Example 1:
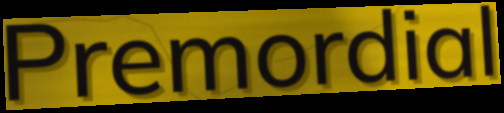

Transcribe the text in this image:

Premordial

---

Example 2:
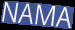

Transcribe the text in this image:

NAMA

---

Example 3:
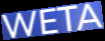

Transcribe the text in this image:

WETA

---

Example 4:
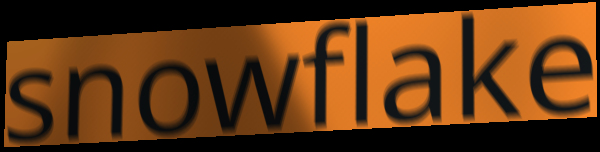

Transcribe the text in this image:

snowflake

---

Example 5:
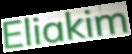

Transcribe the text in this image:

Eliakim